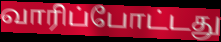
வாரிப்போட்டது